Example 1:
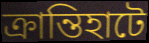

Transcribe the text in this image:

ক্রান্তিহাটে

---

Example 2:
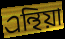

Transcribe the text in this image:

এন্থিয়া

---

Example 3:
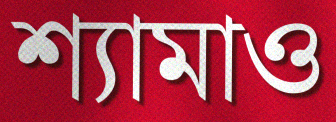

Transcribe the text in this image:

শ্যামাও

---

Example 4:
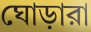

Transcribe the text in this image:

ঘোড়ারা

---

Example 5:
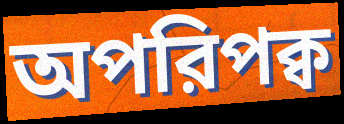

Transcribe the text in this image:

অপরিপক্ব